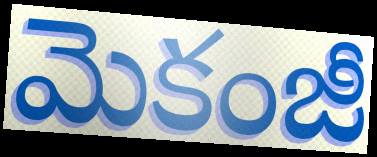
మెకంజీ